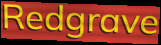
Redgrave